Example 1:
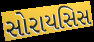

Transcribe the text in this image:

સોરાયસિસ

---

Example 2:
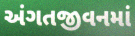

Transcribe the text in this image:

અંગતજીવનમાં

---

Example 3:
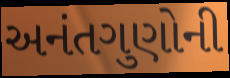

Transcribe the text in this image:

અનંતગુણોની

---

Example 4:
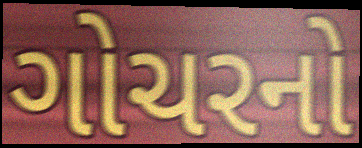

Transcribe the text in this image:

ગોચરનો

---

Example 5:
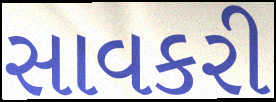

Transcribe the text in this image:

સાવકરી